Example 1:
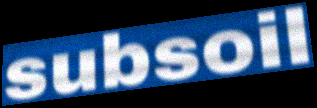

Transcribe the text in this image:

subsoil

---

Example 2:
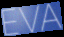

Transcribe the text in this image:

EVA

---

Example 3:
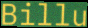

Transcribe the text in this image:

Billu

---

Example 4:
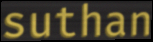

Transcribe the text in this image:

suthan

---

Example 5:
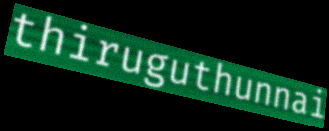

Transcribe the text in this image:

thiruguthunnai